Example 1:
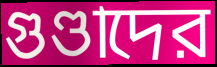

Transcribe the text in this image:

গুণ্ডাদের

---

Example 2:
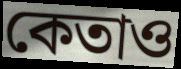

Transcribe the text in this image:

কেতাও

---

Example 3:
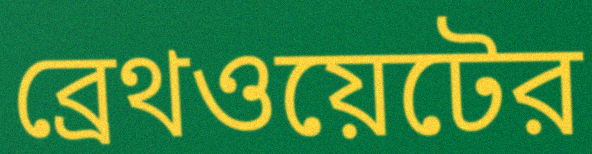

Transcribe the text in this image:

ব্রেথওয়েটের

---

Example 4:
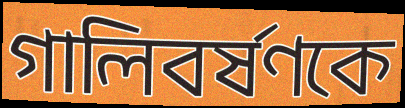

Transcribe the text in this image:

গালিবর্ষণকে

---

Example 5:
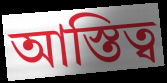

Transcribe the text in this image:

আস্তিত্ব